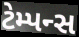
ટેમ્પન્સ